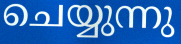
ചെയ്യുന്നു